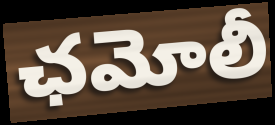
ఛమోలీ